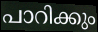
പാറിക്കും